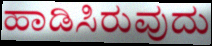
ಹಾಡಿಸಿರುವುದು